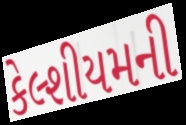
કેલ્શીયમની